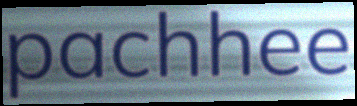
pachhee